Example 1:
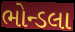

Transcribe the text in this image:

ભોન્ડલા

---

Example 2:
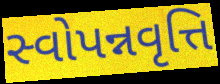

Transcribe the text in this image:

સ્વોપન્નવૃત્તિ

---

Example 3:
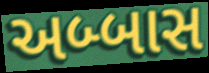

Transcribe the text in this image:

અબ્બાસ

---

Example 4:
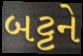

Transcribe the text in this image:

બટ્ટને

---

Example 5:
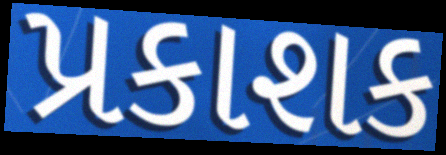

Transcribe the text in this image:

પ્રકાશક